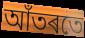
আঁতৰতে